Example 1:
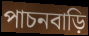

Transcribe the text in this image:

পাচনবাড়ি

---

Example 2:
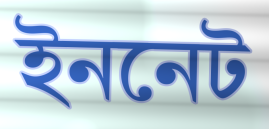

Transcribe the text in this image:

ইননেট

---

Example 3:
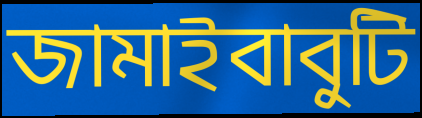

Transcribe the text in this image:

জামাইবাবুটি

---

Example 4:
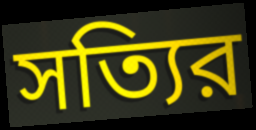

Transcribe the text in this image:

সত্যির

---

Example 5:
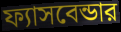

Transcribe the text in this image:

ফ্যাসবেন্ডার